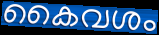
കൈവശം